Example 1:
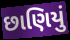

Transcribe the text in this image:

છાણિયું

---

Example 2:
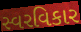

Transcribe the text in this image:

સ્વરવિકાર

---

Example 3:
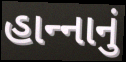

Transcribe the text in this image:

હાન્‍નાનું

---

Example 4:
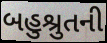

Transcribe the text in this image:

બહુશ્રુતની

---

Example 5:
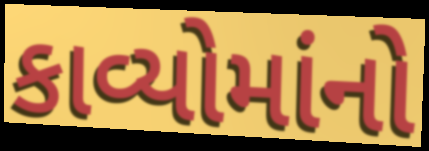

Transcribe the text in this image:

કાવ્યોમાંનો